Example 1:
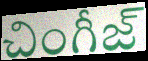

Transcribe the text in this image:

చింగీజ్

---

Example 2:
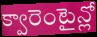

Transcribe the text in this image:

క్వారెంటైన్లో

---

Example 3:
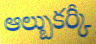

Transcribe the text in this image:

ఆల్బుకర్కీ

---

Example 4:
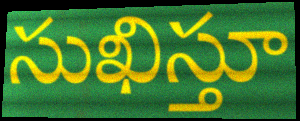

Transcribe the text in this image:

సుఖిస్తూ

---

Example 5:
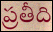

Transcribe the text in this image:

ప్రతీది